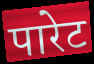
पारेट